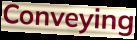
Conveying